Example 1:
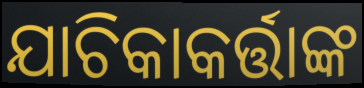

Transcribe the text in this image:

ଯାଚିକାକର୍ତ୍ତାଙ୍କ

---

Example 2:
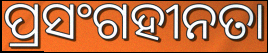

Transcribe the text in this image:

ପ୍ରସଂଗହୀନତା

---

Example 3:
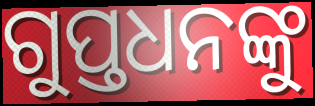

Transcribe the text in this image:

ଗୁପ୍ତଧନଙ୍କୁ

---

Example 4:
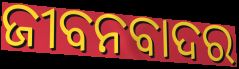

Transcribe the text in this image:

ଜୀବନବାଦର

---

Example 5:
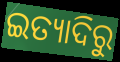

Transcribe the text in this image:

ଇତ୍ୟାଦିରୁ